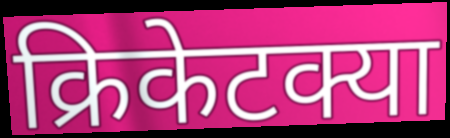
क्रिकेटक्या